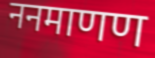
ननमाणण